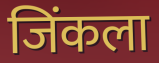
जिंकला